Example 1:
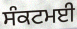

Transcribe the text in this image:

ਸੰਕਟਮਈ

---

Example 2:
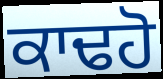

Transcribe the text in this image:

ਕਾਢਹੋ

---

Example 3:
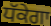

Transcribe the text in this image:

ਧੱਕੇਗਾ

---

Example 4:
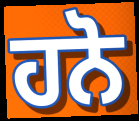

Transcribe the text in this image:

ਹਨੋ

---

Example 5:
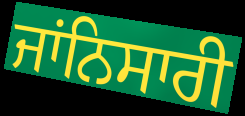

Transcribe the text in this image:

ਜਾਂਨਿਸਾਰੀ